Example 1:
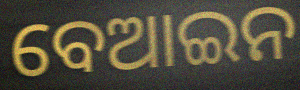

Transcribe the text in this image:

ବେଆଇନ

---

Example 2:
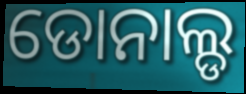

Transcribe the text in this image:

ଡୋନାଲ୍ଡ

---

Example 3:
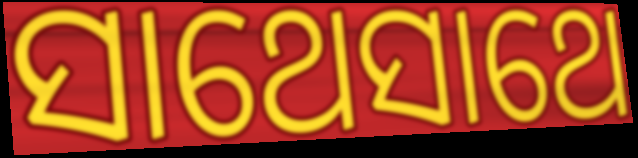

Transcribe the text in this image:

ସାଥେସାଥେ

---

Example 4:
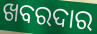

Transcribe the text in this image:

ଖବରଦାର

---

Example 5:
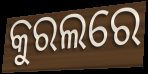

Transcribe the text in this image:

କୁରଲରେ